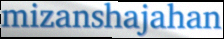
mizanshajahan